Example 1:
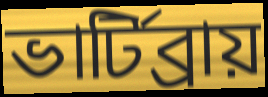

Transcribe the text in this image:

ভার্টিব্রায়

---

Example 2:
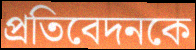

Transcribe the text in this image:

প্রতিবেদনকে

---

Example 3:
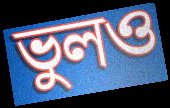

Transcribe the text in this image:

ভুলও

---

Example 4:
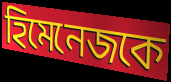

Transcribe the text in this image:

হিমেনেজকে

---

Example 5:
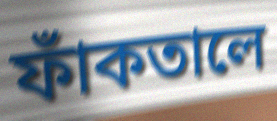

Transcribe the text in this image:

ফাঁকতালে